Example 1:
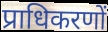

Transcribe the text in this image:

प्राधिकरणों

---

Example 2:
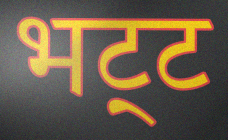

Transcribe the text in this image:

भट्‌ट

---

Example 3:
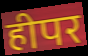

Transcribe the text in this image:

हीपर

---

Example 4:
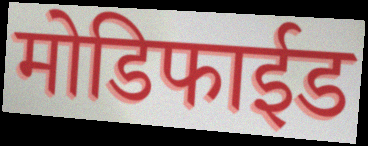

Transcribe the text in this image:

मोडिफाईड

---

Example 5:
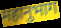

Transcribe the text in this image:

महानुभाग